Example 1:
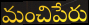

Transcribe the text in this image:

మంచిపేరు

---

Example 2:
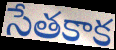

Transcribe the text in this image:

సేతకాక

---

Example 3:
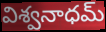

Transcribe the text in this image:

విశ్వనాధమ్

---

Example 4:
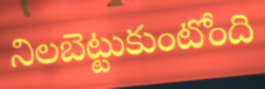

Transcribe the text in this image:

నిలబెట్టుకుంటోంది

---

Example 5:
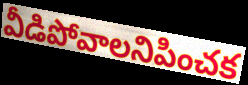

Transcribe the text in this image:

వీడిపోవాలనిపించక